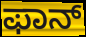
ಫಾನ್